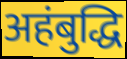
अहंबुद्धि